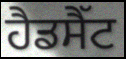
ਹੈਡਸੈੱਟ